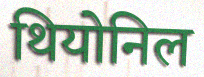
थियोनिल